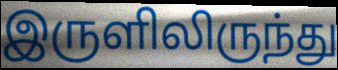
இருளிலிருந்து